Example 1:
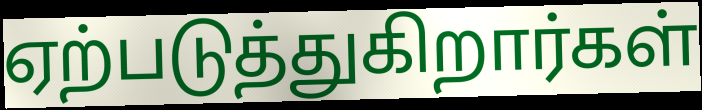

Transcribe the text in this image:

ஏற்படுத்துகிறார்கள்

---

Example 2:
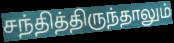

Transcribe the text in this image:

சந்தித்திருந்தாலும்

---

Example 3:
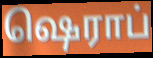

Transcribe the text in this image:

ஷெராப்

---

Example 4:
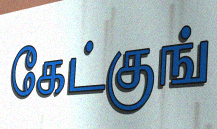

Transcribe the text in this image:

கேட்குங்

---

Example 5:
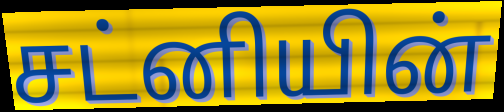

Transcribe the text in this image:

சட்னியின்